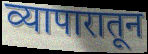
व्यापारातून